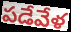
పడేవేళ